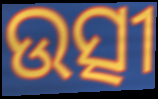
ଉତ୍ସୀ